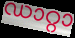
ഡാറ്റാ